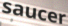
saucer